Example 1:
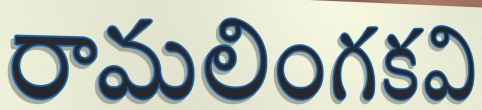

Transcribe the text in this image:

రామలింగకవి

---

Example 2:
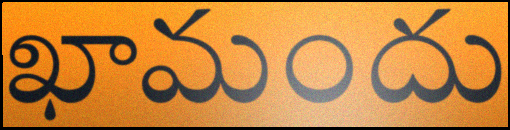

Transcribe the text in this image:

ఖామందు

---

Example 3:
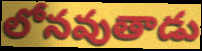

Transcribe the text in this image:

లోనవుతాడు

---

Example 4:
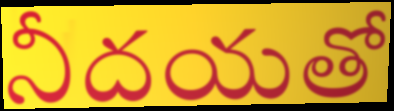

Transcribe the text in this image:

నీదయతో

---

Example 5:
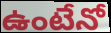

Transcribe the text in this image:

ఉంటేనో